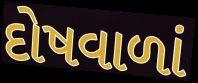
દોષવાળાં